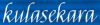
kulasekara